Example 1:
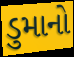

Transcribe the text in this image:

ડુમાનો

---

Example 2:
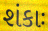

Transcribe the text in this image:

શંકાઃ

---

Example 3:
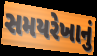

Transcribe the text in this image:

સમયરેખાનું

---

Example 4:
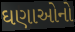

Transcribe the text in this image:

ઘણાઓનો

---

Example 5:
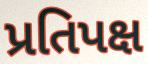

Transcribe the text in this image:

પ્રતિપક્ષ